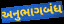
અનુભાગબંધ